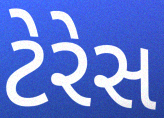
ટેરેસ